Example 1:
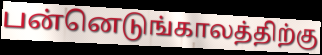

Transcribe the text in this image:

பன்னெடுங்காலத்திற்கு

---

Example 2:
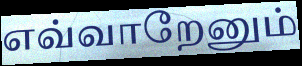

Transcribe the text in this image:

எவ்வாறேனும்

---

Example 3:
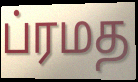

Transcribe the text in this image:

ப்ரமத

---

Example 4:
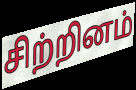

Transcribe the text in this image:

சிற்றினம்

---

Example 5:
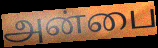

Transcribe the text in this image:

அன்பை